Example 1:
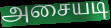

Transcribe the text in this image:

அசையடி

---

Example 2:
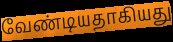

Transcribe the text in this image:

வேண்டியதாகியது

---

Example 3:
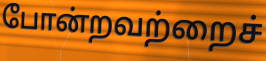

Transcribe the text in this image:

போன்றவற்றைச்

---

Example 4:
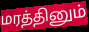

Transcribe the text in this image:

மரத்தினும்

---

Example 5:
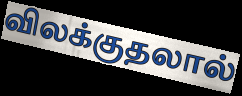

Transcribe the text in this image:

விலக்குதலால்